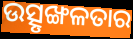
ଉତ୍ସୃଙ୍ଖଳତାର